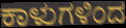
ಕಾಳುಗಳಿಂದ